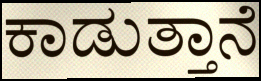
ಕಾಡುತ್ತಾನೆ